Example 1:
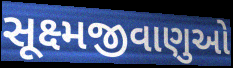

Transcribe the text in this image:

સૂક્ષ્મજીવાણુઓ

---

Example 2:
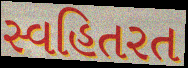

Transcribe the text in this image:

સ્વહિતરત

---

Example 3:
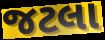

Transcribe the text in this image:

જટલા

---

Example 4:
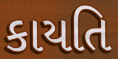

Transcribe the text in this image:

કાયતિ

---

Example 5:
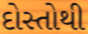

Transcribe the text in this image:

દોસ્તોથી